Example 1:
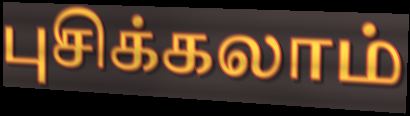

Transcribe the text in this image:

புசிக்கலாம்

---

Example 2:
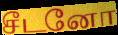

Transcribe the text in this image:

சீடனோ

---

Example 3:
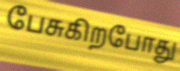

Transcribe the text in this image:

பேசுகிறபோது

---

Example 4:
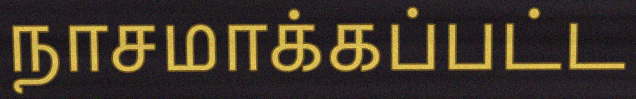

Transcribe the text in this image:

நாசமாக்கப்பட்ட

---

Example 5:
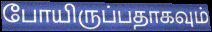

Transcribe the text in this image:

போயிருப்பதாகவும்